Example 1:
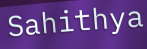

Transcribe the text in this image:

Sahithya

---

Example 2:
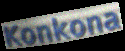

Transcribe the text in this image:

Konkona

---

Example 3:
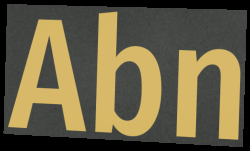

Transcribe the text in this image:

Abn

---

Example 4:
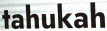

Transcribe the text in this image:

tahukah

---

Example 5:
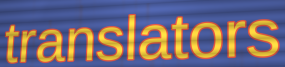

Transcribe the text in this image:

translators